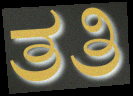
ತತಿ